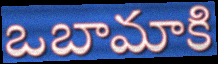
ఒబామాకి